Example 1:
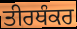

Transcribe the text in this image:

ਤੀਰਥੰਕਰ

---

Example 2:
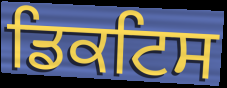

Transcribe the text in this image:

ਡਿਕਟਿਸ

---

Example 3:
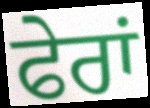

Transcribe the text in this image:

ਫੇਰਾਂ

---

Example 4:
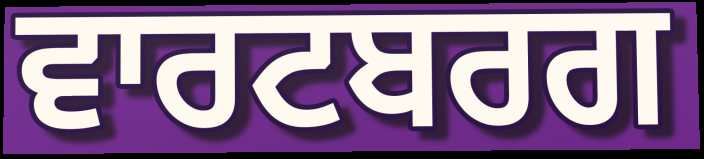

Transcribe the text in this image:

ਵਾਰਟਬਰਗ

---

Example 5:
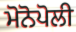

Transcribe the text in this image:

ਮੋਨੋਪੋਲੀ